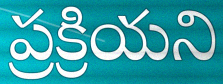
ప్రక్రియని